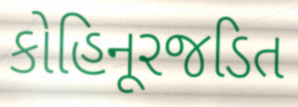
કોહિનૂરજડિત